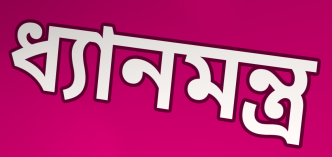
ধ্যানমন্ত্র